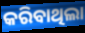
କରିବାଥିଲା